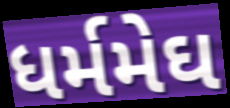
ધર્મમેઘ